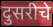
दुसरीचे